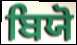
ਬਿਯੋ